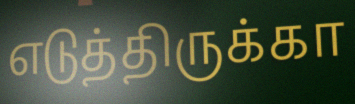
எடுத்திருக்கா